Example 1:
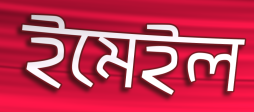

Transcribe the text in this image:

ইমেইল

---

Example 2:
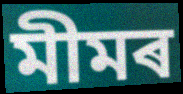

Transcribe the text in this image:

মীমৰ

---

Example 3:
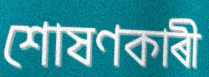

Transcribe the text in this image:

শোষণকাৰী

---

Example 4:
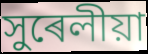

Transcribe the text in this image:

সুৰেলীয়া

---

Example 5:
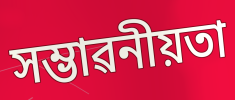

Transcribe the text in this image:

সম্ভাৱনীয়তা